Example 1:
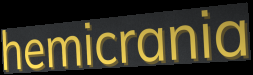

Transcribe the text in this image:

hemicrania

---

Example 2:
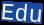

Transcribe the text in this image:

Edu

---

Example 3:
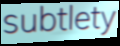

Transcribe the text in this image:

subtlety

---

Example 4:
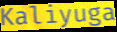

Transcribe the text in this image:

Kaliyuga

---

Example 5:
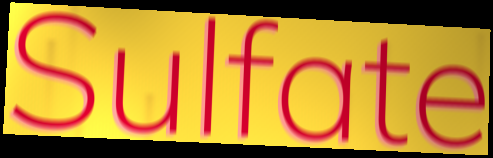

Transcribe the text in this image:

Sulfate